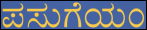
ಪಸುಗೆಯಂ